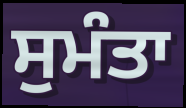
ਸੁਮੰਤਾ